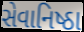
સેવાનિષ્ઠા